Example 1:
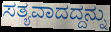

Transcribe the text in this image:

ಸತ್ಯವಾದದ್ದನ್ನು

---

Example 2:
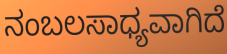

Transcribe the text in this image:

ನಂಬಲಸಾಧ್ಯವಾಗಿದೆ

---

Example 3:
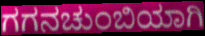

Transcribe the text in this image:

ಗಗನಚುಂಬಿಯಾಗಿ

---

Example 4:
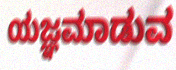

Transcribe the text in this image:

ಯಜ್ಞಮಾಡುವ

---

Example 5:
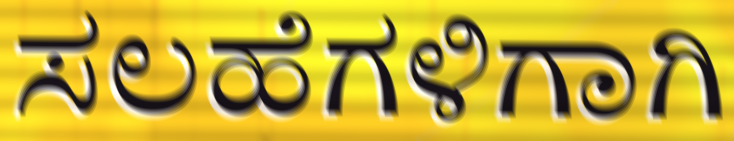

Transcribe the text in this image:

ಸಲಹೆಗಳಿಗಾಗಿ